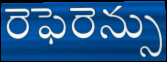
రెఫెరెన్సు